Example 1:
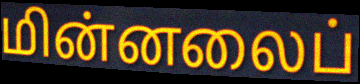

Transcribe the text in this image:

மின்னலைப்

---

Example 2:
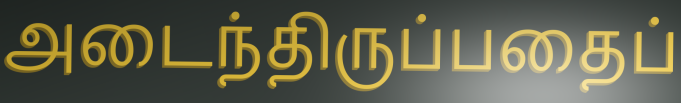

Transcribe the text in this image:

அடைந்திருப்பதைப்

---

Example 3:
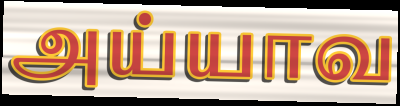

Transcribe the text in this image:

அய்யாவ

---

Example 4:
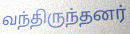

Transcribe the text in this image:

வந்திருந்தனர்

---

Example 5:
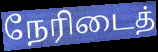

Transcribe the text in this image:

நேரிடைத்